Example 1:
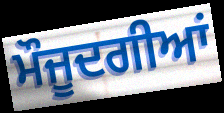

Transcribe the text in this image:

ਮੌਜੂਦਗੀਆਂ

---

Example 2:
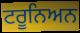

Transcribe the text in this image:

ਟਰੂਨਿਅਨ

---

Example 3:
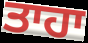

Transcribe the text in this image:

ਤਾਹਾ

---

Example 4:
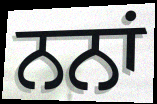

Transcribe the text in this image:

ਨਨਾਂ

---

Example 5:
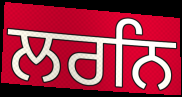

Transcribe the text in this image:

ਲਰਨਿ